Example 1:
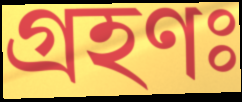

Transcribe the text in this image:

গ্রহণঃ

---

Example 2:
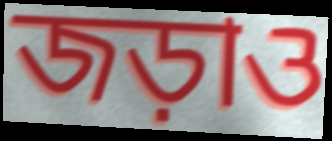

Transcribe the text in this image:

জড়াও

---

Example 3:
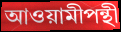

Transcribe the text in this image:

আওয়ামীপন্থী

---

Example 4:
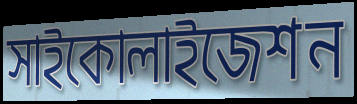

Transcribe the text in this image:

সাইকোলাইজেশন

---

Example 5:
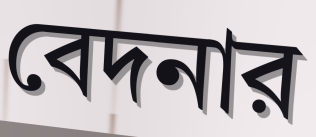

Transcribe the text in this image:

বেদনার